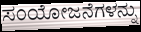
ಸಂಯೋಜನೆಗಳನ್ನು